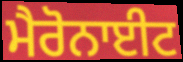
ਮੈਰੋਨਾਈਟ